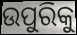
ଉପୁରିକୁ